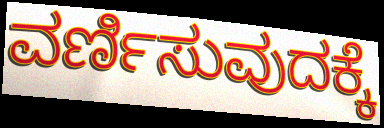
ವರ್ಣಿಸುವುದಕ್ಕೆ